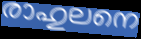
രാഹുലനെ